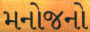
મનોજનો